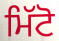
ਮਿੱਟੋ